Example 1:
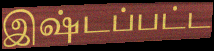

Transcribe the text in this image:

இஷ்டப்பட்ட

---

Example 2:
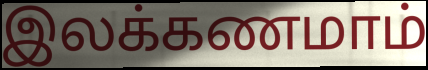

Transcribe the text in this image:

இலக்கணமாம்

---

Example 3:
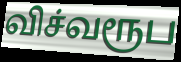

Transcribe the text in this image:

விச்வரூப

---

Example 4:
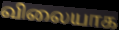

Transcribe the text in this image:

விலையாக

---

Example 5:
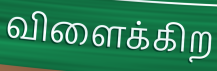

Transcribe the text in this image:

விளைக்கிற